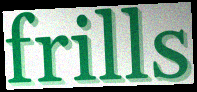
frills